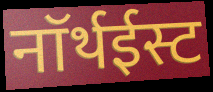
नॉर्थईस्‍ट